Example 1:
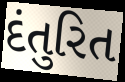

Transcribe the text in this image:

દંતુરિત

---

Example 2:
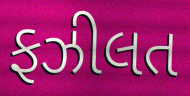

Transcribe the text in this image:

ફઝીલત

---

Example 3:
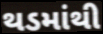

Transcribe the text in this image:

થડમાંથી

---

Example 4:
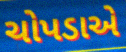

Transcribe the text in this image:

ચોપડાએ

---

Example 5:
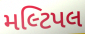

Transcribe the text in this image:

મલ્ટિપલ